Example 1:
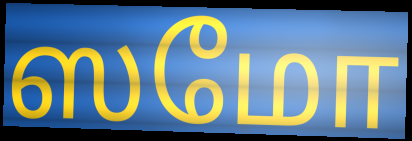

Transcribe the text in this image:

ஸமோ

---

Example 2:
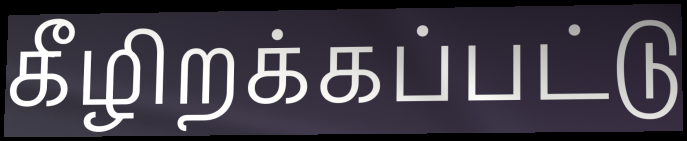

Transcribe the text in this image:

கீழிறக்கப்பட்டு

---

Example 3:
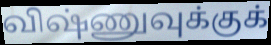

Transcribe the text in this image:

விஷ்ணுவுக்குக்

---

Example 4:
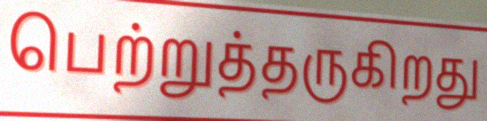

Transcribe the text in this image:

பெற்றுத்தருகிறது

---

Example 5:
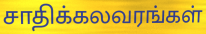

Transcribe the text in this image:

சாதிக்கலவரங்கள்